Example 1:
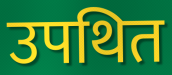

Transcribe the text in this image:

उपथित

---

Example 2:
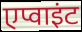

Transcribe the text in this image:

एप्वाइंट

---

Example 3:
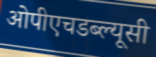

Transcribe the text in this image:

ओपीएचडब्ल्यूसी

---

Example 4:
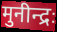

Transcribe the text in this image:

मुनीन्द्रः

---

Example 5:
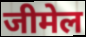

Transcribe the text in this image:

जीमेल